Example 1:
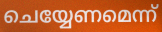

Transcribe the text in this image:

ചെയ്യേണമെന്ന്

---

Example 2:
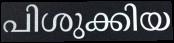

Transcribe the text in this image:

പിശുക്കിയ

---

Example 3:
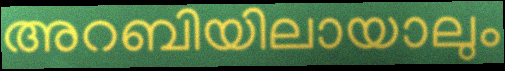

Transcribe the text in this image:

അറബിയിലായാലും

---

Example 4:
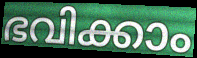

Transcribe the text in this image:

ഭവിക്കാം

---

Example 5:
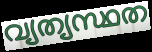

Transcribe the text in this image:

വ്യത്യസ്ഥത